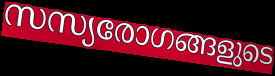
സസ്യരോഗങ്ങളുടെ